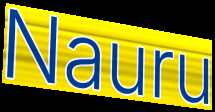
Nauru